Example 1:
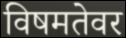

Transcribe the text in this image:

विषमतेवर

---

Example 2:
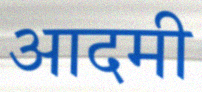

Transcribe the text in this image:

आदमी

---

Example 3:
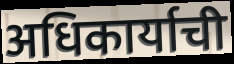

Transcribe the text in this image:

अधिकार्याची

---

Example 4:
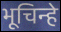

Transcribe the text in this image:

भूचिन्हे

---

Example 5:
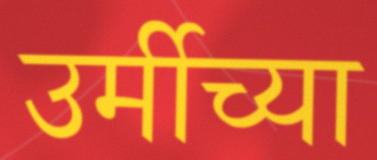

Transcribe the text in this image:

उर्मीच्या